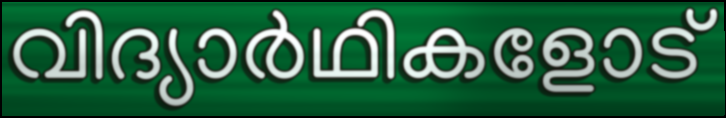
വിദ്യാർഥികളോട്